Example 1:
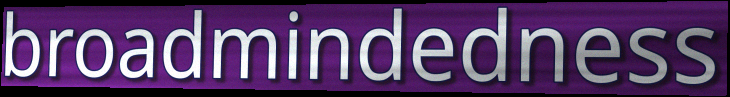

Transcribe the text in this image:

broadmindedness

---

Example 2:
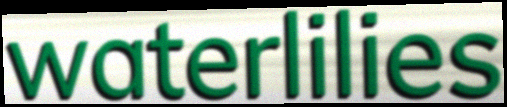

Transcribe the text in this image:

waterlilies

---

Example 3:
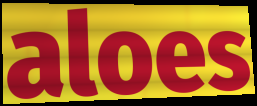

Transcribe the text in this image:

aloes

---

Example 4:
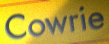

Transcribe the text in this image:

Cowrie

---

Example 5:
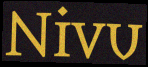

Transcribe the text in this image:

Nivu